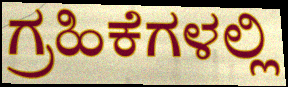
ಗ್ರಹಿಕೆಗಳಲ್ಲಿ